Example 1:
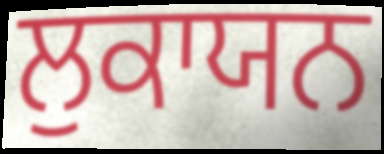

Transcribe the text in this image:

ਲੁਕਾਯਨ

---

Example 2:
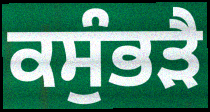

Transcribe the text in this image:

ਕਸੁੰਭੜੈ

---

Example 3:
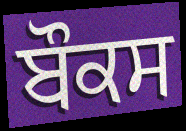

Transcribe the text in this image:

ਬੌਕਸ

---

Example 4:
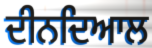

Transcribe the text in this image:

ਦੀਨਦਿਆਲ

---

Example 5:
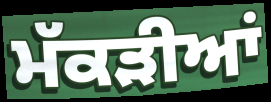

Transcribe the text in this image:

ਮੱਕੜੀਆਂ